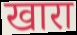
खारा